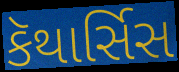
કૅથાર્સિસ